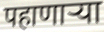
पहाणार्‍या